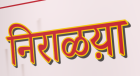
निराळय़ा